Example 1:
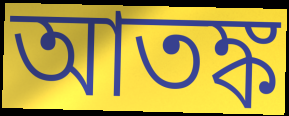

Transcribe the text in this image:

আতঙ্ক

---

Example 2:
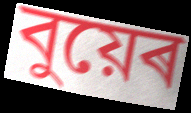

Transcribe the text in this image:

বুয়েৰ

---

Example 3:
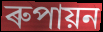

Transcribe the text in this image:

ৰুপায়ন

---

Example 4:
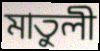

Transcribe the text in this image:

মাতুলী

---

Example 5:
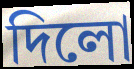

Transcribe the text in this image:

দিলো